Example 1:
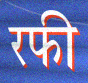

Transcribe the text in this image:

रफी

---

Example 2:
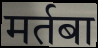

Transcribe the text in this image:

मर्तबा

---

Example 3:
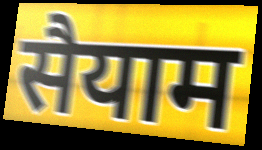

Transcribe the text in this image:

सैयाम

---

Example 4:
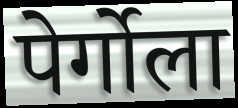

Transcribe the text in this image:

पेर्गोला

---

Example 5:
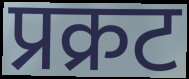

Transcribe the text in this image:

प्रक्रट